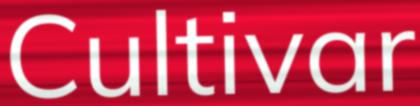
Cultivar